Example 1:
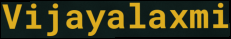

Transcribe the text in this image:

Vijayalaxmi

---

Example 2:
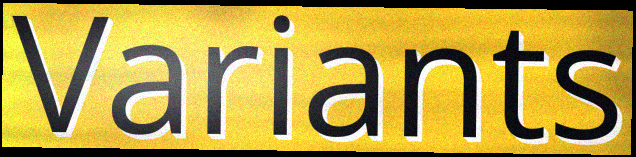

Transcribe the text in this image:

Variants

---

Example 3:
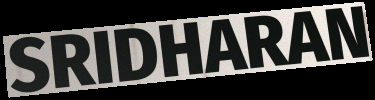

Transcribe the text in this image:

SRIDHARAN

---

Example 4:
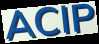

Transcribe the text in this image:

ACIP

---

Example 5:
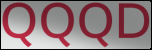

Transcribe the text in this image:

QQQD